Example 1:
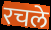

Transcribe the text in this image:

रचले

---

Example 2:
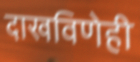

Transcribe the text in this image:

दाखविणेही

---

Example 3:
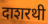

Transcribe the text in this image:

दाशरथी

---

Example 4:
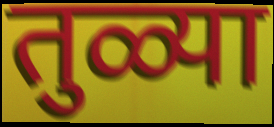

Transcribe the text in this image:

तुळ्या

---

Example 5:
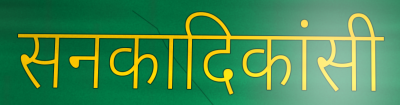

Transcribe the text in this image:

सनकादिकांसी